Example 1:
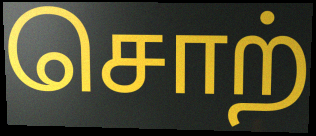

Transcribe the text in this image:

சொற்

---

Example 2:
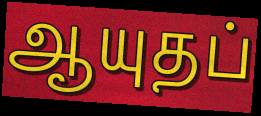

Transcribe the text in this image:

ஆயுதப்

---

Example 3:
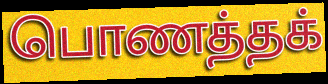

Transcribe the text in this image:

பொணத்தக்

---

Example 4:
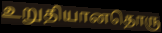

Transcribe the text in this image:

உறுதியானதொரு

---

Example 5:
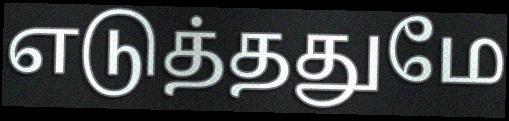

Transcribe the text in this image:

எடுத்ததுமே